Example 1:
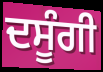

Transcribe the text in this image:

ਦਸੂੰਗੀ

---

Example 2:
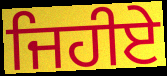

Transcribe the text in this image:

ਜਿਹੀਏ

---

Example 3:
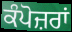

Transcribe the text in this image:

ਕੰਪੋਜ਼ਰਾਂ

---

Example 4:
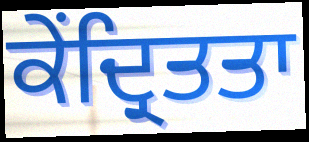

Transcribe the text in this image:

ਕੇਂਦ੍ਰਿਤਤਾ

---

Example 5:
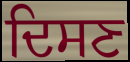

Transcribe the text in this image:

ਦਿਸਣ